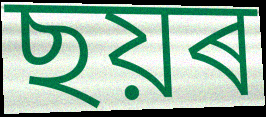
ছয়ৰ